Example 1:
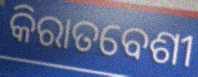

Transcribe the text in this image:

କିରାତବେଶୀ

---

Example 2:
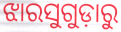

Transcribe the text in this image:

ଝାରସୁଗୁଡ଼ାରୁ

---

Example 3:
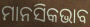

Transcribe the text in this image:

ମାନସିକଭାବ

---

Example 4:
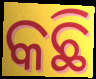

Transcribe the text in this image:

କଛି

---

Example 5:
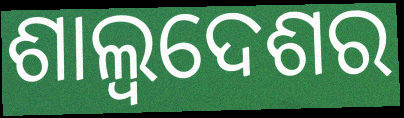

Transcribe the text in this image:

ଶାଲ୍ୱଦେଶର